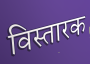
विस्तारक